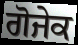
ਗੋਜੇਕ